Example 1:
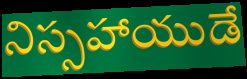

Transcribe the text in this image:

నిస్సహాయుడే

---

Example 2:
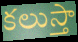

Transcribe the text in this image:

కలుస్తా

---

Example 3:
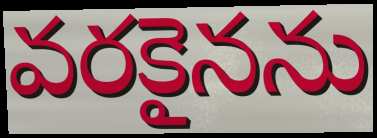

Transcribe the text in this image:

వరకైనను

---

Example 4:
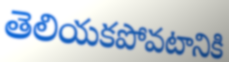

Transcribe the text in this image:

తెలియకపోవటానికి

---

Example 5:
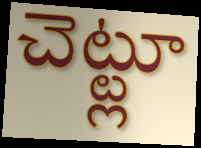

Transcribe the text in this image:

చెట్ట్లూ